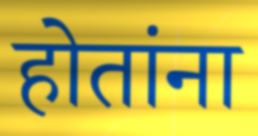
होतांना